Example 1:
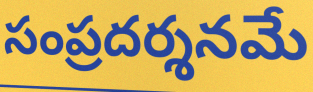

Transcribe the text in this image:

సంప్రదర్శనమే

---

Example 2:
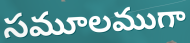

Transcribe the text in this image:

సమూలముగా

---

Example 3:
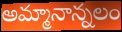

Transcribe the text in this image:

అమ్మానాన్నలం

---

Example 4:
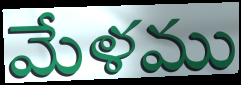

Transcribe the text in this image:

మేళము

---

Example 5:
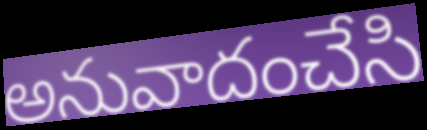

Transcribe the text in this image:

అనువాదంచేసి